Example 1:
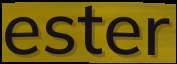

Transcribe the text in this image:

ester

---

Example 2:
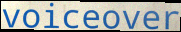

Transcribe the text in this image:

voiceover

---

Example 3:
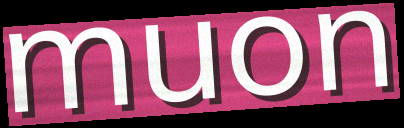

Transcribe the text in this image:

muon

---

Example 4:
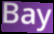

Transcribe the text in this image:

Bay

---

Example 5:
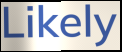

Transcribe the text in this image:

Likely